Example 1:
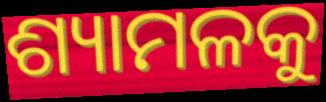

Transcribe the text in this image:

ଶ୍ୟାମଳକୁ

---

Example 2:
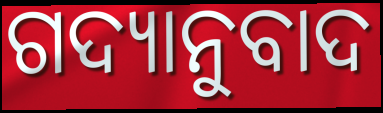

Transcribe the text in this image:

ଗଦ୍ୟାନୁବାଦ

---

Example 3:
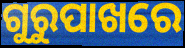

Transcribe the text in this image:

ଗୁରୁପାଖରେ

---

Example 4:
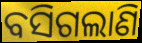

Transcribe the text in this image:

ବସିଗଲାଣି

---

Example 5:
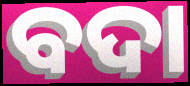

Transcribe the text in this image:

ବଦା